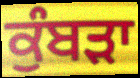
ਕੁੰਬੜਾ